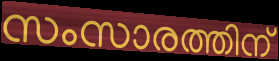
സംസാരത്തിന്